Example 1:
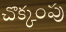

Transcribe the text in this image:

చొక్కంపు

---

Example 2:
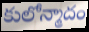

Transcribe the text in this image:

కులోన్మాదం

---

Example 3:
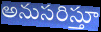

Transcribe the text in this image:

అనుసరిస్తూ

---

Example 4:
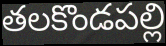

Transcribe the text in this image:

తలకొండపల్లి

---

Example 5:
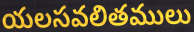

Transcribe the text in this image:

యలసవలితములు